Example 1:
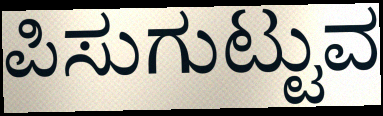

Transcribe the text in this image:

ಪಿಸುಗುಟ್ಟುವ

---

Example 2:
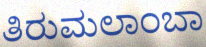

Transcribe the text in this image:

ತಿರುಮಲಾಂಬಾ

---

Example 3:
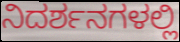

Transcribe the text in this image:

ನಿದರ್ಶನಗಳಲ್ಲಿ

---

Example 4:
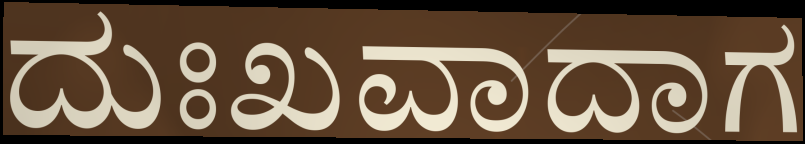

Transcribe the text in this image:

ದುಃಖವಾದಾಗ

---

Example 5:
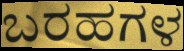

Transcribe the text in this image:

ಬರಹಗಳ